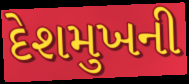
દેશમુખની